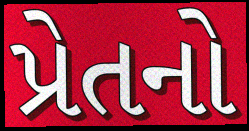
પ્રેતનો